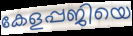
കേളപ്പജിയെ